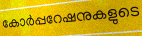
കോർപ്പറേഷനുകളുടെ